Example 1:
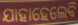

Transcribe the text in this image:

ଯାହାହେଲେବି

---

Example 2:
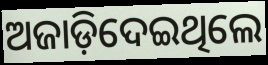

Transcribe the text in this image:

ଅଜାଡ଼ିଦେଇଥିଲେ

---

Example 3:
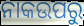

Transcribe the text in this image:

ନାକଉପରୁ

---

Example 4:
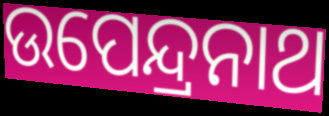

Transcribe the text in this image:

ଉପେନ୍ଦ୍ରନାଥ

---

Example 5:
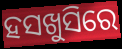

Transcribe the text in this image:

ହସଖୁସିରେ